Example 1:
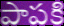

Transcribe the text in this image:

పాపకి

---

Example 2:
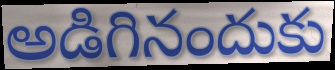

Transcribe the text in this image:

అడిగినందుకు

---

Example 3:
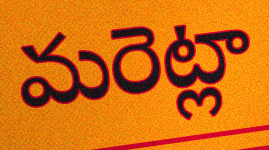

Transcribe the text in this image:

మరెట్లా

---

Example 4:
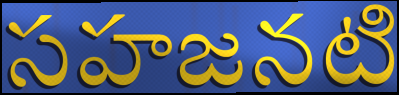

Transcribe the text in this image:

సహజనటి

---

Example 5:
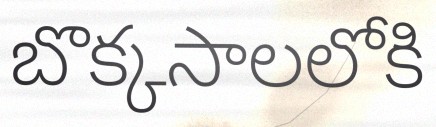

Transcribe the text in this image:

బొక్కసాలలోకి